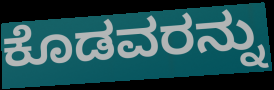
ಕೊಡವರನ್ನು